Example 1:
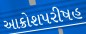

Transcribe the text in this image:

આક્રોશપરીષહ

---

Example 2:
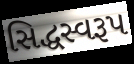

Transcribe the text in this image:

સિદ્ધસ્વરૂપ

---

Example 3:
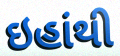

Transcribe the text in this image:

ઇહાંથી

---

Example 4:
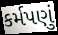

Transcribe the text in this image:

કર્મપણું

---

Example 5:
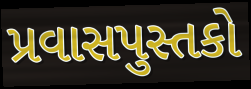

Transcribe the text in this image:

પ્રવાસપુસ્તકો